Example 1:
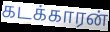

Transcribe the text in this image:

கடக்காரன்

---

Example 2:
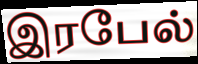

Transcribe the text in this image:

இரபேல்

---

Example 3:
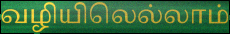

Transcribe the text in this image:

வழியிலெல்லாம்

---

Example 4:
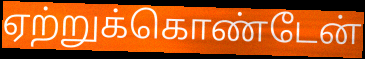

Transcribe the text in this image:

ஏற்றுக்கொண்டேன்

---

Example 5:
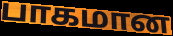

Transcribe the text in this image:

பாகமான